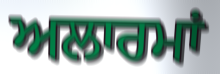
ਅਲਾਰਮਾਂ